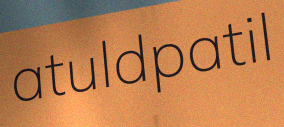
atuldpatil